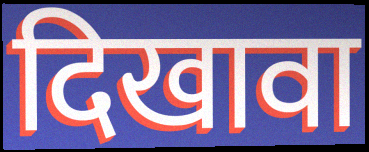
दिखावा